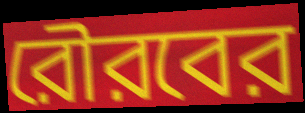
রৌরবের